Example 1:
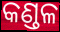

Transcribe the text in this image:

କଣ୍ଡଳ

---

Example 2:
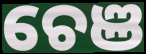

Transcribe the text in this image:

ଚେଞ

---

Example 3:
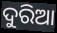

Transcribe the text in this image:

ଦୁରିଆ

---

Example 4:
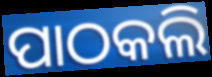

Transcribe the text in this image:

ପାଠକଲି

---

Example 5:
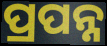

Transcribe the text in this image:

ପ୍ରପନ୍ନ